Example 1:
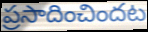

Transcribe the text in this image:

ప్రసాదించిందట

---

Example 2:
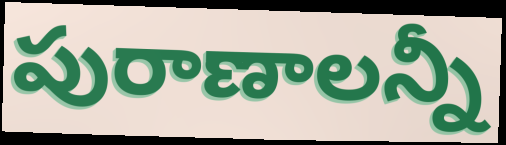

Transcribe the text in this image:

పురాణాలన్నీ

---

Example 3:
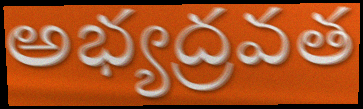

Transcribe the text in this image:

అభ్యద్రవత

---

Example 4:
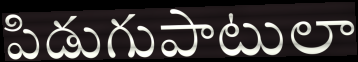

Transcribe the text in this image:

పిడుగుపాటులా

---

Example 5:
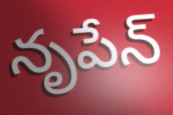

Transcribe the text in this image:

నృపేన్